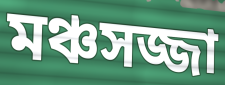
মঞ্চসজ্জা